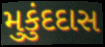
મુકુંદદાસ